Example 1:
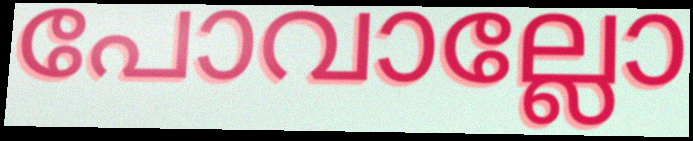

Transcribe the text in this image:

പോവാല്ലോ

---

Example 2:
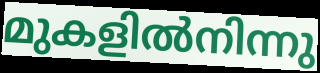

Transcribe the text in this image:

മുകളിൽനിന്നു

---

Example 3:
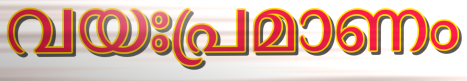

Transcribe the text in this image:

വയഃപ്രമാണം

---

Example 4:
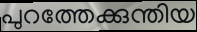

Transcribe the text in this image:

പുറത്തേക്കുന്തിയ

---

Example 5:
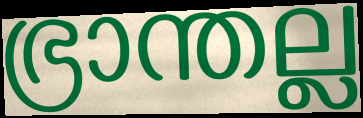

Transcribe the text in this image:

ഭ്രാന്തല്ല